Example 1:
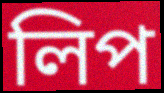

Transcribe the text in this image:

লিপ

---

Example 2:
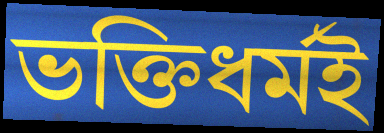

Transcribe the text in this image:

ভক্তিধৰ্মই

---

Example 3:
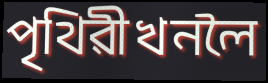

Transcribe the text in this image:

পৃথিৱীখনলৈ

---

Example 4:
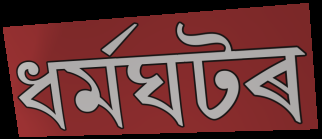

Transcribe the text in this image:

ধৰ্মঘটৰ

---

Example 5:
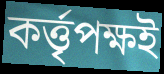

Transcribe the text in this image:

কৰ্ত্তৃপক্ষই